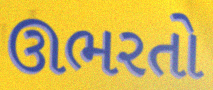
ઊભરતો